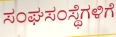
ಸಂಘಸಂಸ್ಥೆಗಳಿಗೆ